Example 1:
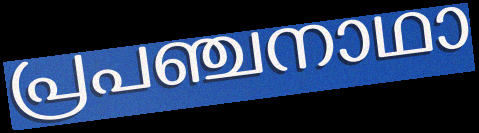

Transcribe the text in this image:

പ്രപഞ്ചനാഥാ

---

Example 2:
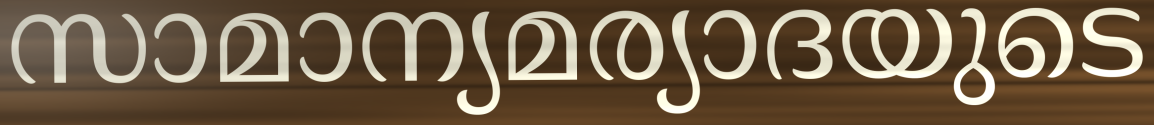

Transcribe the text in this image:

സാമാന്യമര്യാദയുടെ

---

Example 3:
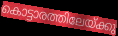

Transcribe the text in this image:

കൊട്ടാരത്തിലേയ്ക്കു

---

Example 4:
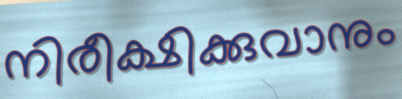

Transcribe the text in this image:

നിരീക്ഷിക്കുവാനും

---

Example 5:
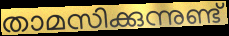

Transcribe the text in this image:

താമസിക്കുന്നുണ്ട്